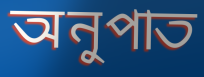
অনুপাত